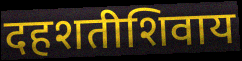
दहशतीशिवाय